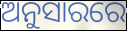
ଅନୁସାରରେ